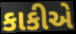
કાકીએ